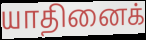
யாதினைக்